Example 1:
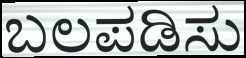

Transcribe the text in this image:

ಬಲಪಡಿಸು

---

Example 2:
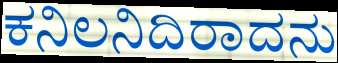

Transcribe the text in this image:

ಕನಿಲನಿದಿರಾದನು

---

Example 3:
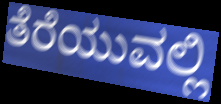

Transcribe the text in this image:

ತೆರೆಯುವಲ್ಲಿ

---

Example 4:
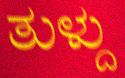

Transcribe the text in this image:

ತುಳ್ದು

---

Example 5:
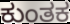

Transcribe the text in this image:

ಕುಂತಕ